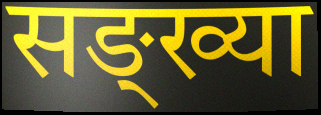
सङ्ख्या